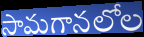
సామగానలోల